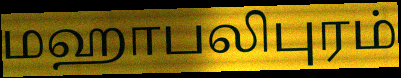
மஹாபலிபுரம்